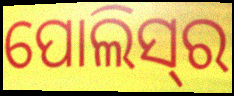
ପୋଲିସ୍‍ର